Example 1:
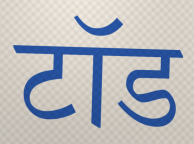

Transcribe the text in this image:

टॉड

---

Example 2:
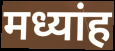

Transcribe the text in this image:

मध्यांह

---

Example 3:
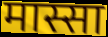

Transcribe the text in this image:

मास्सा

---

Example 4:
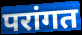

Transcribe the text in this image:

परांगत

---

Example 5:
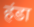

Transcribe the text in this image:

हंडा